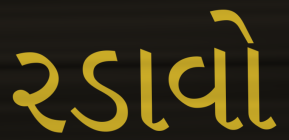
રડાવો